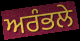
ਅਰੰਭਲੇ